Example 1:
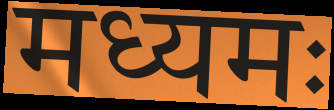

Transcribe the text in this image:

मध्यमः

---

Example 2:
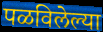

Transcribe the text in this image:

पळविलेल्या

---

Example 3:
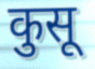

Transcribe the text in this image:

कुसू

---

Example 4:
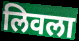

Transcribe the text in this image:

लिवला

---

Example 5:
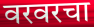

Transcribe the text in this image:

वरवरचा